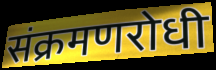
संक्रमणरोधी